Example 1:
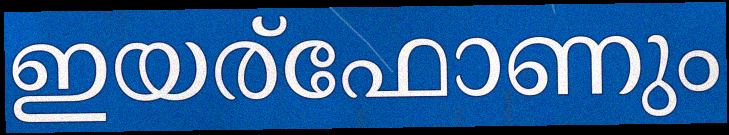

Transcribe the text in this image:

ഇയര്ഫോണും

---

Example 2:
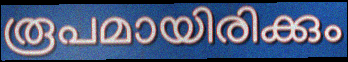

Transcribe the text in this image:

രൂപമായിരിക്കും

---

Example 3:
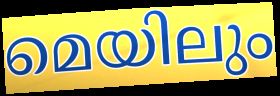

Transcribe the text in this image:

മെയിലും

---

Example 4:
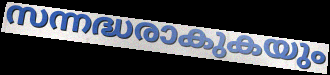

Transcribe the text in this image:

സന്നദ്ധരാകുകയും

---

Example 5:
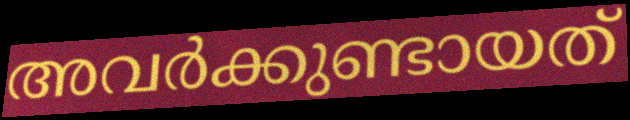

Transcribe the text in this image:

അവർക്കുണ്ടായത്